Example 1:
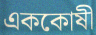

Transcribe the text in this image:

এককোষী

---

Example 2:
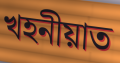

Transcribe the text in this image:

খহনীয়াত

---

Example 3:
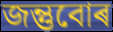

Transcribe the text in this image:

জন্তুবোৰ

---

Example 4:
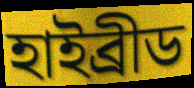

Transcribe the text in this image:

হাইব্ৰীড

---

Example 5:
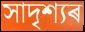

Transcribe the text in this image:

সাদৃশ্যৰ